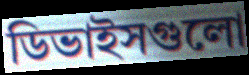
ডিভাইসগুলো